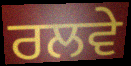
ਰਲਵੇ